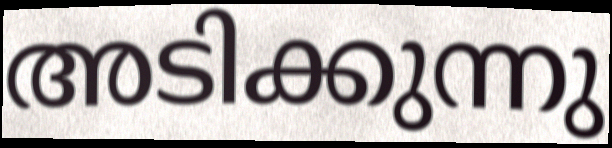
അടിക്കുന്നു